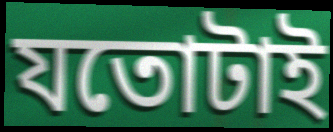
যতোটাই